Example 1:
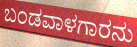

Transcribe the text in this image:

ಬಂಡವಾಳಗಾರನು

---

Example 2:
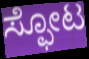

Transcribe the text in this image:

ಸ್ಫೋಟ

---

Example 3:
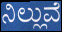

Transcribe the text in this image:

ನಿಲ್ಲುವೆ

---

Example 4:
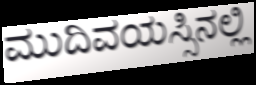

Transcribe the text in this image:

ಮುದಿವಯಸ್ಸಿನಲ್ಲಿ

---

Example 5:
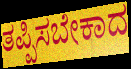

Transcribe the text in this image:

ತಪ್ಪಿಸಬೇಕಾದ